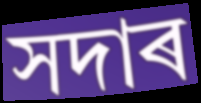
সদাৰ